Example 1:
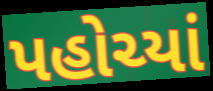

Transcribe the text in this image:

પહોચ્યાં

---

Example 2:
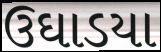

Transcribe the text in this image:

ઉઘાડયા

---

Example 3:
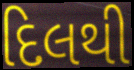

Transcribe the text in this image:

દિલથી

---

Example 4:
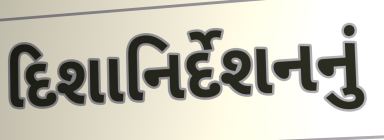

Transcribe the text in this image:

દિશાનિર્દેશનનું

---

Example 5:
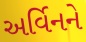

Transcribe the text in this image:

અર્વિનને